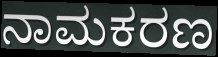
ನಾಮಕರಣ